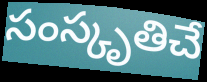
సంస్కృతిచే